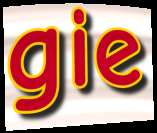
gie